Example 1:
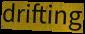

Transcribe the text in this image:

drifting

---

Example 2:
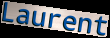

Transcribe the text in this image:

Laurent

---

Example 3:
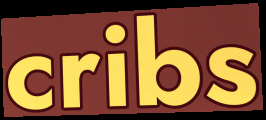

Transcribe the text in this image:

cribs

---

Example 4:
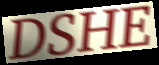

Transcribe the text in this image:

DSHE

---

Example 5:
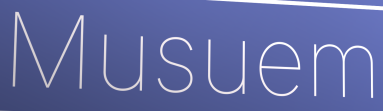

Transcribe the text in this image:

Musuem